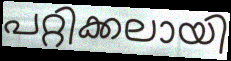
പറ്റിക്കലായി